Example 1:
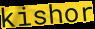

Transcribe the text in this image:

kishor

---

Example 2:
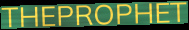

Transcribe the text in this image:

THEPROPHET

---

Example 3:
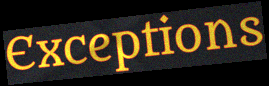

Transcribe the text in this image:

Exceptions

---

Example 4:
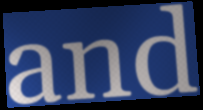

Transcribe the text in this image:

and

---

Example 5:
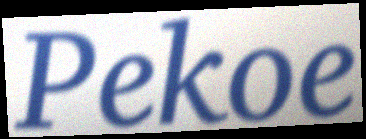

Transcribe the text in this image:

Pekoe